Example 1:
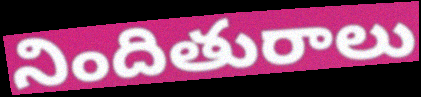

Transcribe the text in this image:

నిందితురాలు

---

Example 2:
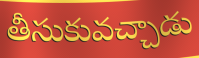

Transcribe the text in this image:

తీసుకువచ్చాడు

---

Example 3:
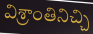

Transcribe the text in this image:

విశ్రాంతినిచ్చి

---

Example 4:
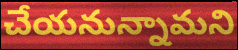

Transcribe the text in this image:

చేయనున్నామని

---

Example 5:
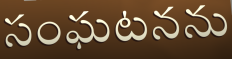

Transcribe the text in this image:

సంఘటనను